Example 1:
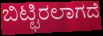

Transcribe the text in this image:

ಬಿಟ್ಟಿರಲಾಗದೆ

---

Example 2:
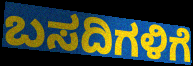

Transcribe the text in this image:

ಬಸದಿಗಳಿಗೆ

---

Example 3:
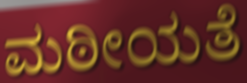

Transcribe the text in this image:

ಮಠೀಯತೆ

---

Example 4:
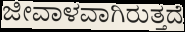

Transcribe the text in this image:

ಜೀವಾಳವಾಗಿರುತ್ತದೆ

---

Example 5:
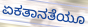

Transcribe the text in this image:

ಏಕತಾನತೆಯೂ